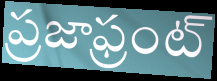
ప్రజాఫ్రంట్